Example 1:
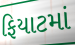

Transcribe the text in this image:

ફિયાટમાં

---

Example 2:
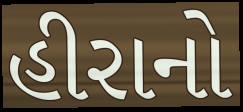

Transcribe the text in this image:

હીરાનો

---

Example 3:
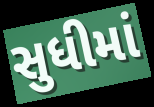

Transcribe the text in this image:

સુધીમાં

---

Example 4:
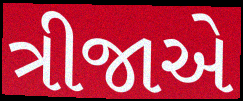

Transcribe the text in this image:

ત્રીજાએ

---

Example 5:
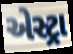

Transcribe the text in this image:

એસ્ટ્રા